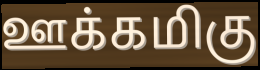
ஊக்கமிகு